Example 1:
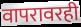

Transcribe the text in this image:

वापरावरही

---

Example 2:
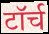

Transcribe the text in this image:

टॉर्च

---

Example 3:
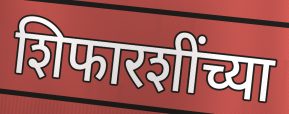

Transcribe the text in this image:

शिफारशींच्या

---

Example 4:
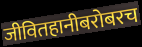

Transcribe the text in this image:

जीवितहानीबरोबरच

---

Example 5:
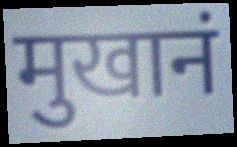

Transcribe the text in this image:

मुखानं